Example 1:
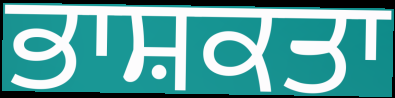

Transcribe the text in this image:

ਭਾਸ਼ਕਤਾ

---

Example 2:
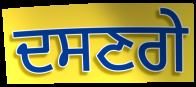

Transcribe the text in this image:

ਦਸਣਗੇ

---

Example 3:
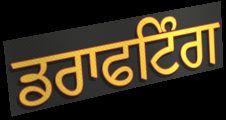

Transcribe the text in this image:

ਡਰਾਫਟਿੰਗ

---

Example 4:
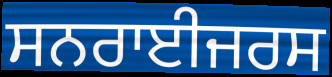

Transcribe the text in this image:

ਸਨਰਾਈਜਰਸ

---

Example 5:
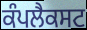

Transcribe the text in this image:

ਕੰਪਲੈਕਸਟ